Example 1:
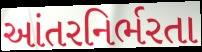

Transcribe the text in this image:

આંતરનિર્ભરતા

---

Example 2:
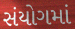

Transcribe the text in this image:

સંયોગમાં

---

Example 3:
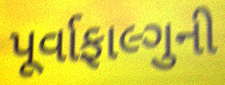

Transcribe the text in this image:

પૂર્વાફાલ્ગુની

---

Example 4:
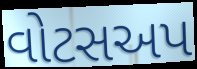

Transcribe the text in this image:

વોટસઅપ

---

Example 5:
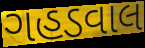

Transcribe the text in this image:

ગહડવાલ